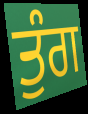
ਤੁੰਗ